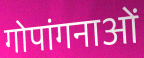
गोपांगनाओं